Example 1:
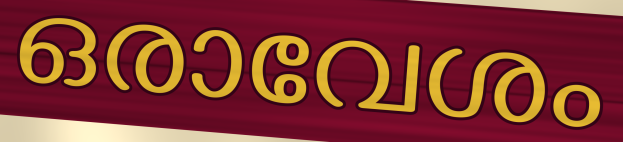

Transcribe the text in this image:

ഒരാവേശം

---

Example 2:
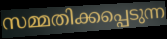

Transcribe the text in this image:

സമ്മതിക്കപ്പെടുന്ന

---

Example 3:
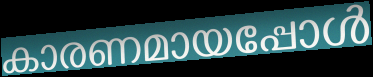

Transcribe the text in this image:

കാരണമായപ്പോൾ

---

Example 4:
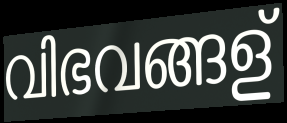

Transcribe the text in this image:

വിഭവങ്ങള്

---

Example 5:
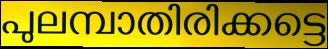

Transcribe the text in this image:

പുലമ്പാതിരിക്കട്ടെ